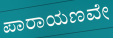
ಪಾರಾಯಣವೇ